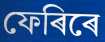
ফেৰিৰে